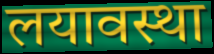
लयावस्था